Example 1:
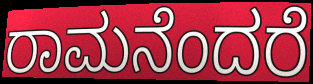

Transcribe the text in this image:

ರಾಮನೆಂದರೆ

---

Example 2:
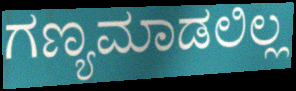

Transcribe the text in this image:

ಗಣ್ಯಮಾಡಲಿಲ್ಲ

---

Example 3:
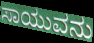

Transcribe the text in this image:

ಸಾಯುವನು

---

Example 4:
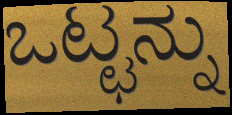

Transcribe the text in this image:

ಒಟ್ಟನ್ನು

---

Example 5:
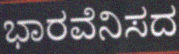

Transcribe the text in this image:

ಭಾರವೆನಿಸದ